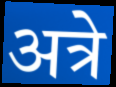
अत्रे